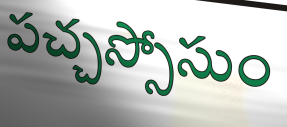
పచ్చస్సోసుం